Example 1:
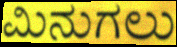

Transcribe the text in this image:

ಮಿನುಗಲು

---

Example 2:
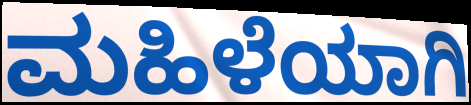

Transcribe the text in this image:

ಮಹಿಳೆಯಾಗಿ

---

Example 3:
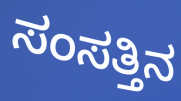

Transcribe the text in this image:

ಸಂಸತ್ತಿನ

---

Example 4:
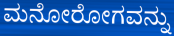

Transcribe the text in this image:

ಮನೋರೋಗವನ್ನು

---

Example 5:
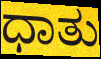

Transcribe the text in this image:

ಧಾತು